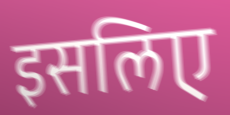
इसलिए